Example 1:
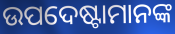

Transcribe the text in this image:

ଉପଦେଷ୍ଟାମାନଙ୍କ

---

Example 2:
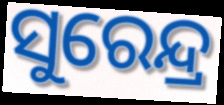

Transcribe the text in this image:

ସୁରେନ୍ଦ୍ର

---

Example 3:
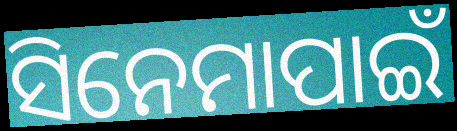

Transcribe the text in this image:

ସିନେମାପାଇଁ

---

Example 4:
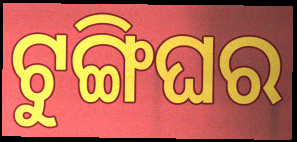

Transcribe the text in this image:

ଟୁଙ୍ଗିଘର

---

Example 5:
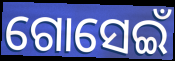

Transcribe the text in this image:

ଗୋସେଇଁ